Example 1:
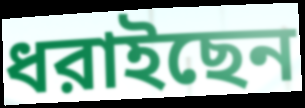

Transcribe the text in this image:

ধরাইছেন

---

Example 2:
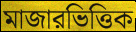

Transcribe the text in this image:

মাজারভিত্তিক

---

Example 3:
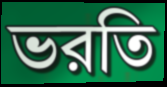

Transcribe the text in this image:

ভরতি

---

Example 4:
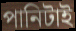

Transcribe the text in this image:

পানিটাই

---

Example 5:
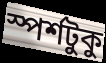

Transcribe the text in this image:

স্পর্শটুকু